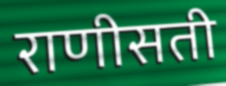
राणीसती